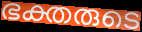
ഭക്തരുടെ